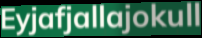
Eyjafjallajokull